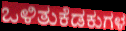
ಒಳಿತುಕೆಡಕುಗಳ